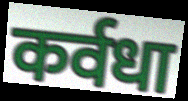
कर्वधा